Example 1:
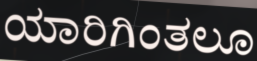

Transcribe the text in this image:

ಯಾರಿಗಿಂತಲೂ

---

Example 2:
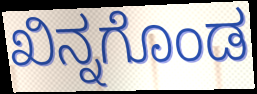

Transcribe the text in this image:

ಖಿನ್ನಗೊಂಡ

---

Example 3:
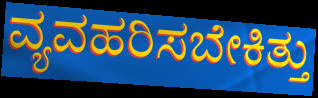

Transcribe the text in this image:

ವ್ಯವಹರಿಸಬೇಕಿತ್ತು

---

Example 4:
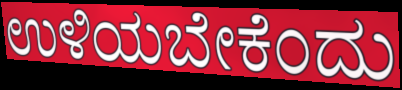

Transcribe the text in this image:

ಉಳಿಯಬೇಕೆಂದು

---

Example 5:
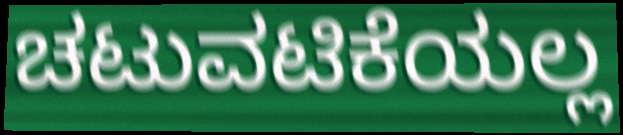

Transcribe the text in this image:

ಚಟುವಟಿಕೆಯಲ್ಲ